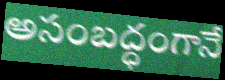
అసంబద్ధంగానే